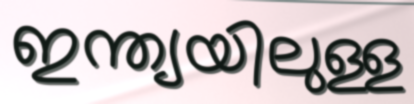
ഇന്ത്യയിലുള്ള